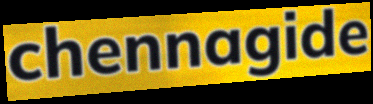
chennagide